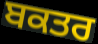
ਬਕਤਰ